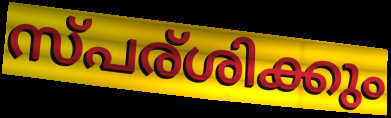
സ്പര്ശിക്കും